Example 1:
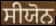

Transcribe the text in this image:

ਸੀਯੋਨ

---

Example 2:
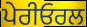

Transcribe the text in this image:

ਪੇਰੀਓਰਲ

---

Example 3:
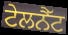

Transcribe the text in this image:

ਟੇਲਨੈੱਟ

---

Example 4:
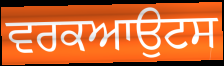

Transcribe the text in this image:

ਵਰਕਆਉਟਸ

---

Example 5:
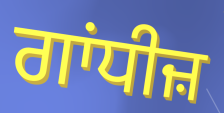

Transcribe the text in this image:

ਗਾਂਧੀਜ਼